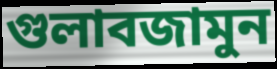
গুলাবজামুন